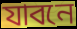
যাবনে